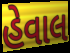
હેવાલ